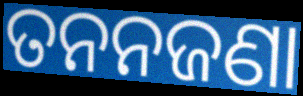
ତନନଜଣା